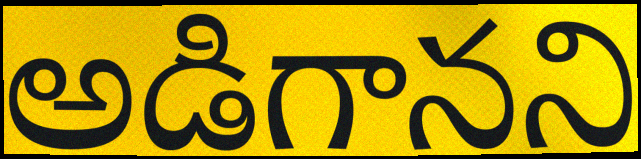
అడిగానని